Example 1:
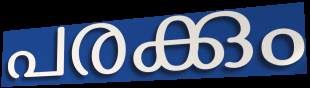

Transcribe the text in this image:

പരക്കും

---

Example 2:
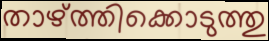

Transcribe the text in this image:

താഴ്ത്തിക്കൊടുത്തു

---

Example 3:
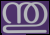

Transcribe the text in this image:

ന്തു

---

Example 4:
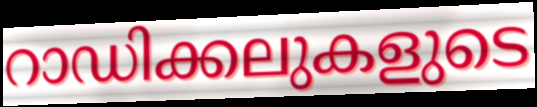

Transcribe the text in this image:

റാഡിക്കലുകളുടെ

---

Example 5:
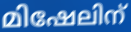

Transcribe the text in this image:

മിഷേലിന്